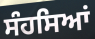
ਸੰਹਸਿਆਂ